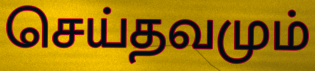
செய்தவமும்